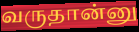
வருதான்னு